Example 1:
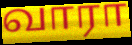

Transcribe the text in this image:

வாரா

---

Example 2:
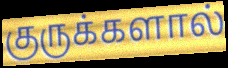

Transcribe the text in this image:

குருக்களால்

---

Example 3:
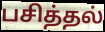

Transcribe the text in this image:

பசித்தல்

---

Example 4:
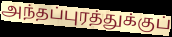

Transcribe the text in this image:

அந்தப்புரத்துக்குப்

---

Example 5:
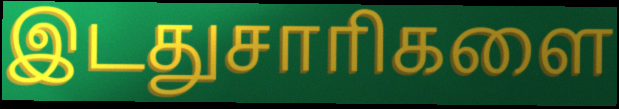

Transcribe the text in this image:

இடதுசாரிகளை